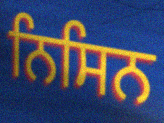
ਨਿਸਿਨ